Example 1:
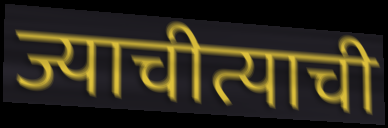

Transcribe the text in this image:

ज्याचीत्याची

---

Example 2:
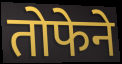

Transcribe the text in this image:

तोफेने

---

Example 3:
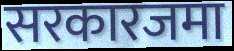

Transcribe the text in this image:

सरकारजमा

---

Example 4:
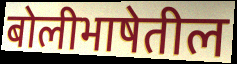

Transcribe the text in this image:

बोलीभाषेतील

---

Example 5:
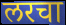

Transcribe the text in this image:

लरचा